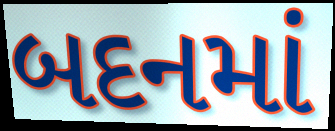
બદનમાં